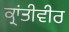
ਕ੍ਰਾਂਤੀਵੀਰ